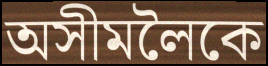
অসীমলৈকে